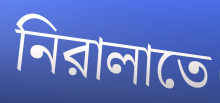
নিরালাতে